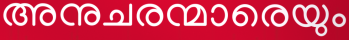
അനുചരന്മാരെയും